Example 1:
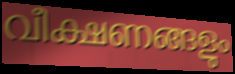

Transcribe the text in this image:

വീക്ഷണങ്ങളും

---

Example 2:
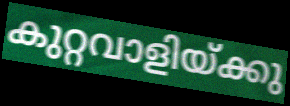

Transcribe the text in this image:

കുറ്റവാളിയ്ക്കു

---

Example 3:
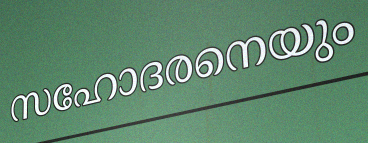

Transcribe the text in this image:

സഹോദരനെയും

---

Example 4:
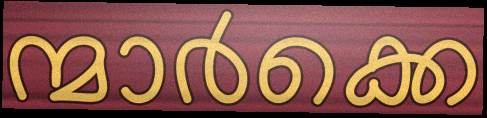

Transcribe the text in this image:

ന്മാർക്കെ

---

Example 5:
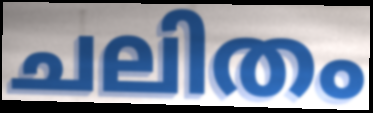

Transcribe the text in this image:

ചലിതം